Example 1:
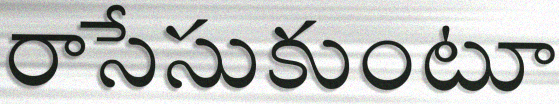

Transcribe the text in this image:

రాసేసుకుంటూ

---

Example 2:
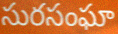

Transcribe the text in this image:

సురసంఘా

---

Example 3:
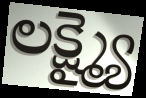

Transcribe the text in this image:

లక్ష్మ్యై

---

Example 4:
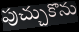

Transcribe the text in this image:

పుచ్చుకొను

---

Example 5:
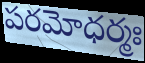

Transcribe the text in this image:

పరమోధర్మః